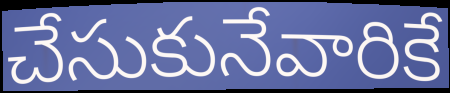
చేసుకునేవారికే